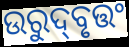
ଉରୁଦ୍‌ବୃତ୍ତଂ